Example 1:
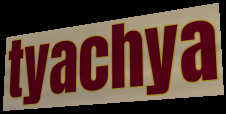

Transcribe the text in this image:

tyachya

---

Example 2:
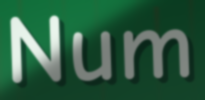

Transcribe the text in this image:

Num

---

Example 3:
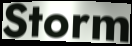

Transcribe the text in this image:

Storm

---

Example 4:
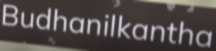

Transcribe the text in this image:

Budhanilkantha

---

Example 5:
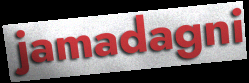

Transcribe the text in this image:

jamadagni